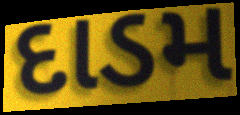
દાડમ